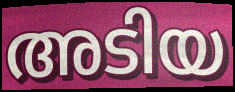
അടിയ